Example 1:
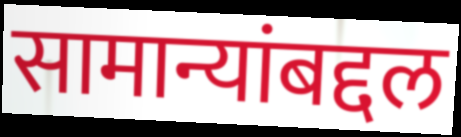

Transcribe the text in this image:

सामान्यांबद्दल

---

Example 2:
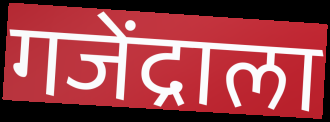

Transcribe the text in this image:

गजेंद्राला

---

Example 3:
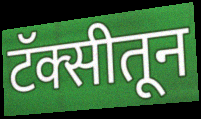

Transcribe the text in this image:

टॅक्‍सीतून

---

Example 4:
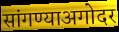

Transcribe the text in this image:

सांगण्याअगोदर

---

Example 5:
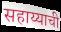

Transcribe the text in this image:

सहाय्याची